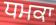
ਧਮਕਾ